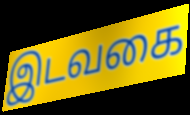
இடவகை